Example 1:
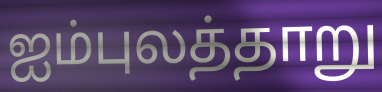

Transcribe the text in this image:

ஐம்புலத்தாறு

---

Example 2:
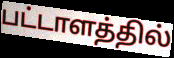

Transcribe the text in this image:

பட்டாளத்தில்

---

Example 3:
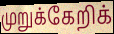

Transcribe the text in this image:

முறுக்கேறிக்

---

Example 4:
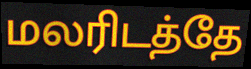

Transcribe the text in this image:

மலரிடத்தே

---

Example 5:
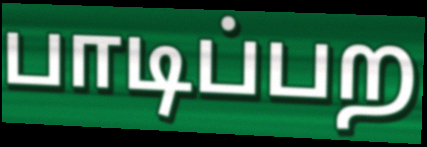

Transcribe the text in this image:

பாடிப்பற